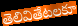
తెలివితేటలకూ